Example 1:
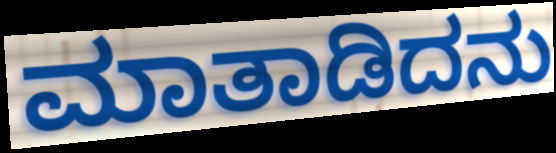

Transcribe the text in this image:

ಮಾತಾಡಿದನು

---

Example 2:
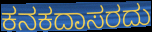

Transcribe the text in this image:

ಕನಕದಾಸರದು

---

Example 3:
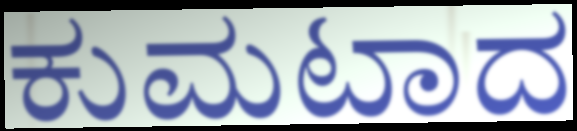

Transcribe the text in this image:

ಕುಮಟಾದ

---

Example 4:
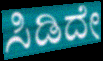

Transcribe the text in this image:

ಸಿಡಿದೇ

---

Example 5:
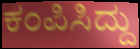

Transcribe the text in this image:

ಕಂಪಿಸಿದ್ದು